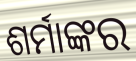
ଶର୍ମାଙ୍କର